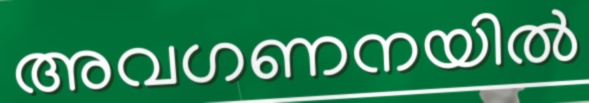
അവഗണനയിൽ